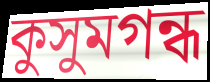
কুসুমগন্ধ